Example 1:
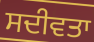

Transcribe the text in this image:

ਸਦੀਵਤਾ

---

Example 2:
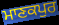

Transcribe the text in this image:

ਮਾਣਕਪੁਰ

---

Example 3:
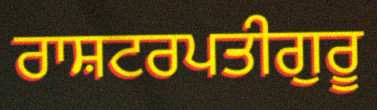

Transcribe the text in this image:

ਰਾਸ਼ਟਰਪਤੀਗੁਰੂ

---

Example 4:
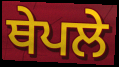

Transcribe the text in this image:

ਥੇਪਲੇ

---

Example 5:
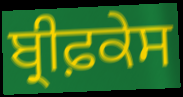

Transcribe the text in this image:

ਬ੍ਰੀਫ਼ਕੇਸ